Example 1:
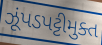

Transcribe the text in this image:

ઝૂંપડપટ્ટીમુક્ત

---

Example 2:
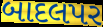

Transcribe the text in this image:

બાદલપર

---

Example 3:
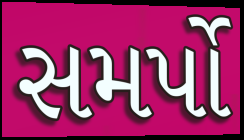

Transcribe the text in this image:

સમર્પો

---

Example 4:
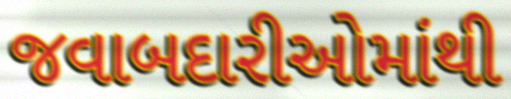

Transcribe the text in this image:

જવાબદારીઓમાંથી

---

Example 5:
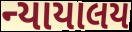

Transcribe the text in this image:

ન્યાયાલય